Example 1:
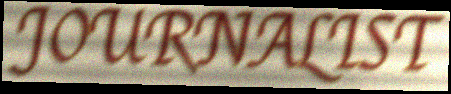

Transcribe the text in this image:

JOURNALIST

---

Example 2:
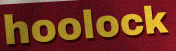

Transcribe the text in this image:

hoolock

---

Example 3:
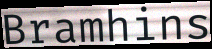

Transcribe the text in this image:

Bramhins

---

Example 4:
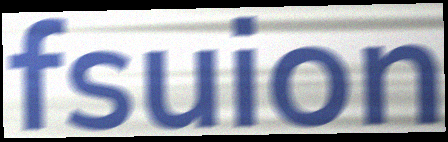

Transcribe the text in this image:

fsuion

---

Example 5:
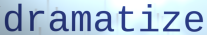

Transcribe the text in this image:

dramatize